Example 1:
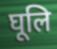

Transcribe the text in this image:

घूलि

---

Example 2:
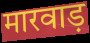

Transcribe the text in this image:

मारवाड़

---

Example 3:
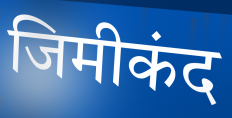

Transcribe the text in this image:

जिमीकंद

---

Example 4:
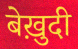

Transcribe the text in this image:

बेख़ुदी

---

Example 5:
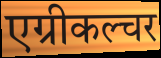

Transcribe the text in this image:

एग्रीकल्चर